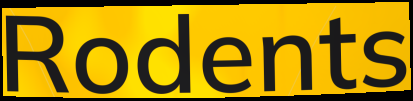
Rodents